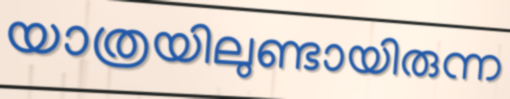
യാത്രയിലുണ്ടായിരുന്ന